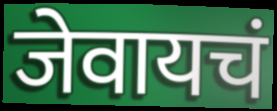
जेवायचं